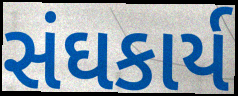
સંઘકાર્ય